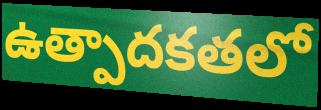
ఉత్పాదకతలో